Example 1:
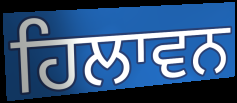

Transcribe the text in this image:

ਹਿਲਾਵਨ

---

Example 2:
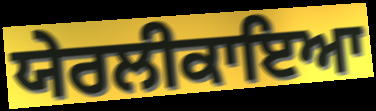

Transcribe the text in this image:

ਯੇਰਲੀਕਾਇਆ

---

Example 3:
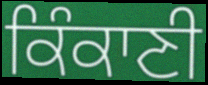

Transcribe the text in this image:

ਕਿੰਕਾਣੀ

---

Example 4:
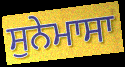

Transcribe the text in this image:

ਸੁਨੇਮਾਸਾ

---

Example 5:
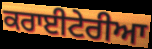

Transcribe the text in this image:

ਕਰਾਈਟੇਰੀਆ